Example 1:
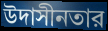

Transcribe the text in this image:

উদাসীনতার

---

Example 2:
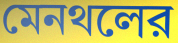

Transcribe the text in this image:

মেনথলের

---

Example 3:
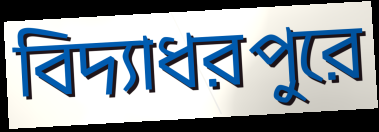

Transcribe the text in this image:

বিদ্যাধরপুরে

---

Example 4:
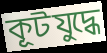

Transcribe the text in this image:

কূটযুদ্ধে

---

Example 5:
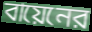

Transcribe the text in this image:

বায়েনের